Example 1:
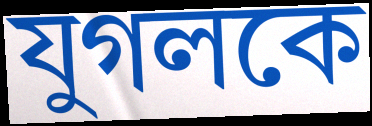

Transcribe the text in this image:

যুগলকে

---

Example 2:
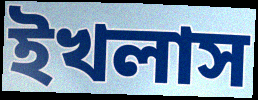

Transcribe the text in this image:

ইখলাস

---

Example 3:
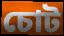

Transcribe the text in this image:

চোট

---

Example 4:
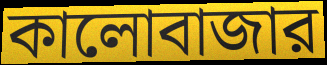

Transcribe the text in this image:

কালোবাজার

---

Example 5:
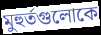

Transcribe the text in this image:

মুহুর্তগুলোকে